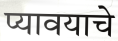
प्यावयाचे